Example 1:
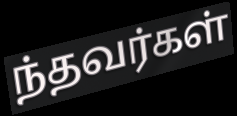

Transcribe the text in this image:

ந்தவர்கள்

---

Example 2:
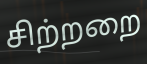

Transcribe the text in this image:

சிற்றறை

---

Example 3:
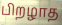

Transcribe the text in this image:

பிறழாத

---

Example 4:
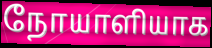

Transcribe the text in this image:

நோயாளியாக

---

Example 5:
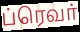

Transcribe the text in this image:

ப்ரெவர்